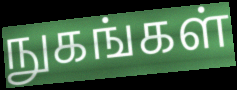
நுகங்கள்